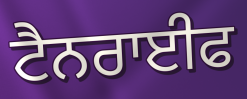
ਟੈਨਰਾਈਫ